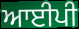
ਆਈਪੀ